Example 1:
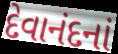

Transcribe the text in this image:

દેવાનંદનાં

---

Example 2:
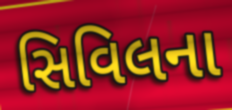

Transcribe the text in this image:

સિવિલના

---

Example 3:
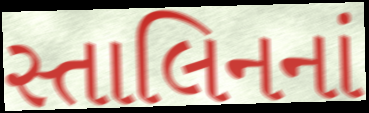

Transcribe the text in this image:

સ્તાલિનનાં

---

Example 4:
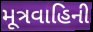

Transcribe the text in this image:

મૂત્રવાહિની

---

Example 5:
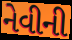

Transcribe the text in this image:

નેવીની